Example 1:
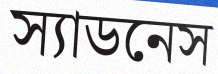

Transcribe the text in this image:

স্যাডনেস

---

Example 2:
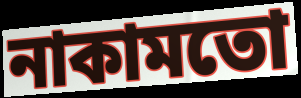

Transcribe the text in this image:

নাকামতো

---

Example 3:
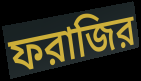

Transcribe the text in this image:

ফরাজির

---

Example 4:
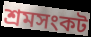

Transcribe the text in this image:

শ্রমসংকট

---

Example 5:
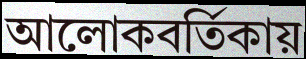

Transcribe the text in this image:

আলোকবর্তিকায়